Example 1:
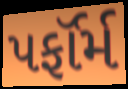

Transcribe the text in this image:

પર્ફૉર્મ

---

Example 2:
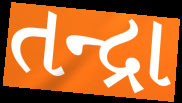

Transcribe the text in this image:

તન્દ્રા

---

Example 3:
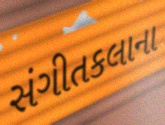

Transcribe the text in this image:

સંગીતકલાના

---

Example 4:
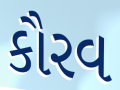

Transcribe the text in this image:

કૌરવ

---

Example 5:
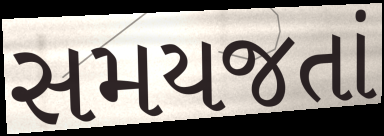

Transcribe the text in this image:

સમયજતાં